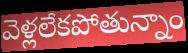
వెళ్లలేకపోతున్నాం